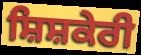
ਸ਼ਿਸ਼ਕੇਰੀ